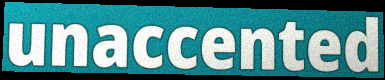
unaccented